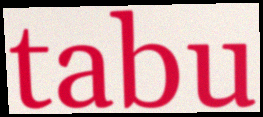
tabu